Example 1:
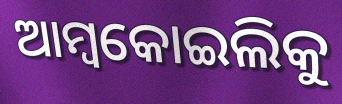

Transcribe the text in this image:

ଆମ୍ବକୋଇଲିକୁ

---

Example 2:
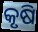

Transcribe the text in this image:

କୃଷି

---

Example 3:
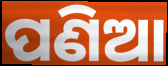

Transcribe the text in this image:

ପଣିଆ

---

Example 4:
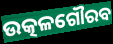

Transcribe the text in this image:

ଉତ୍କଳଗୌରବ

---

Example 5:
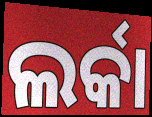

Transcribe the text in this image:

ଲର୍କା